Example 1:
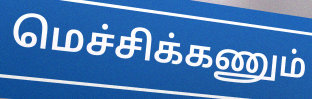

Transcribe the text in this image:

மெச்சிக்கணும்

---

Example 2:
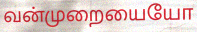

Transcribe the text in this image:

வன்முறையையோ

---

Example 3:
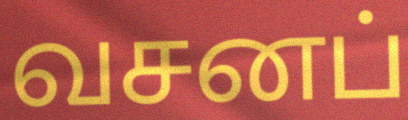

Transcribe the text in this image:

வசனப்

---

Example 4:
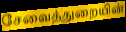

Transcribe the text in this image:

சேவைத்துறையின்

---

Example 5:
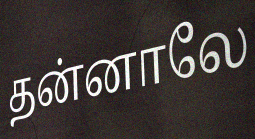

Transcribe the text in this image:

தன்னாலே